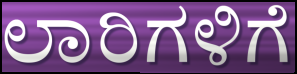
ಲಾರಿಗಳಿಗೆ